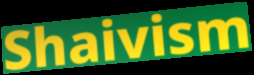
Shaivism